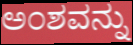
ಅಂಶವನ್ನು